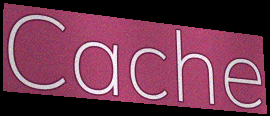
Cache